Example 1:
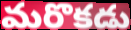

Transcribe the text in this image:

మరొకడు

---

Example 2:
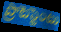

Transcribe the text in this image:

ప్రొటెస్టెంటు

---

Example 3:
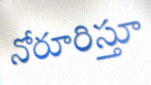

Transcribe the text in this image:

నోరూరిస్తూ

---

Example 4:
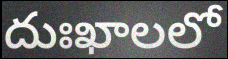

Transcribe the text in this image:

దుఃఖాలలో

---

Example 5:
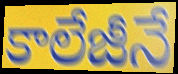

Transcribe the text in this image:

కాలేజీనే